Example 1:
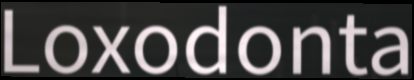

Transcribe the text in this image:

Loxodonta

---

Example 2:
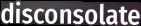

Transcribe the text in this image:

disconsolate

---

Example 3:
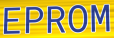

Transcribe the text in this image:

EPROM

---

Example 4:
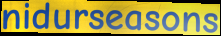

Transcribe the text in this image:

nidurseasons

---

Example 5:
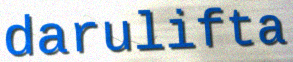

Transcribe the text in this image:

darulifta